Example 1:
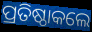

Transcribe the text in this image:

ପ୍ରତିଷ୍ଠାକଲେ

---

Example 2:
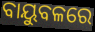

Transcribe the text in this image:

ବାୟୁବଳରେ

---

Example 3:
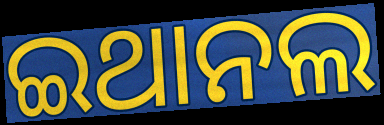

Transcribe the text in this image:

ଇଥାନଲ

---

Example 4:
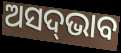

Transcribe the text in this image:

ଅସଦ୍‌ଭାବ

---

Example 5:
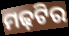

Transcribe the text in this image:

ମଢ଼ଟିର